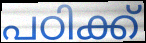
പഠിക്ക്